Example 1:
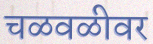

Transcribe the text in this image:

चळवळीवर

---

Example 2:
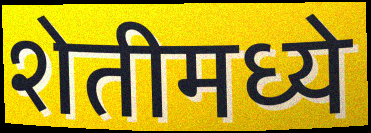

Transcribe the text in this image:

शेतीमध्ये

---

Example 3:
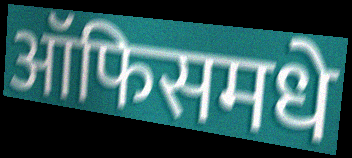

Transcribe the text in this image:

ऑफिसमधे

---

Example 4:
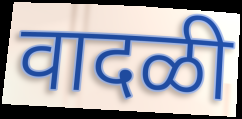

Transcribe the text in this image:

वादळी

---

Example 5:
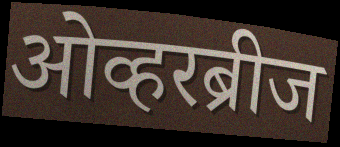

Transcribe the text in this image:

ओव्हरब्रीज